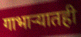
गाभाऱ्यातही